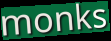
monks